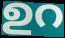
ഉറ